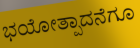
ಭಯೋತ್ಪಾದನೆಗೂ